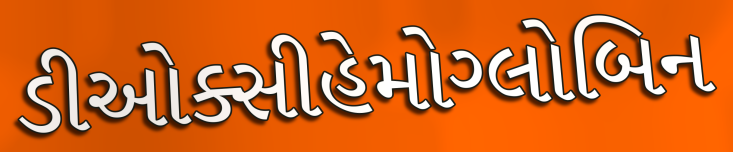
ડીઓક્સીહેમોગ્લોબિન